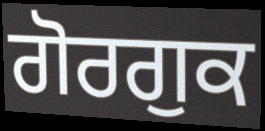
ਗੋਰਗੁਕ